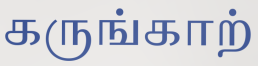
கருங்காற்